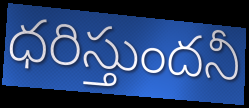
ధరిస్తుందనీ